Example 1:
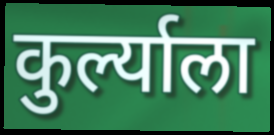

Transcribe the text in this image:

कुर्ल्याला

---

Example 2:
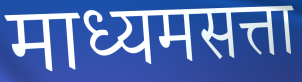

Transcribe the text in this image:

माध्यमसत्ता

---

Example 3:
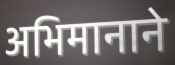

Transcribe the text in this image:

अभिमानाने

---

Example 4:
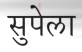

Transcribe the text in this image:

सुपेला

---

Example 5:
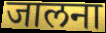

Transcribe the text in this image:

जालना